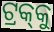
ଟ୍ରକ୍‍କୁ